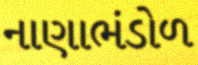
નાણાભંડોળ